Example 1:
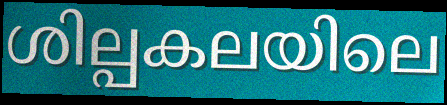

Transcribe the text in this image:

ശില്പകലയിലെ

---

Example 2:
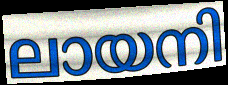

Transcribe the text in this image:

ലായനി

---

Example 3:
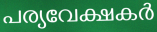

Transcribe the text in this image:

പര്യവേക്ഷകർ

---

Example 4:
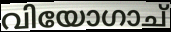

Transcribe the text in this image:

വിയോഗാച്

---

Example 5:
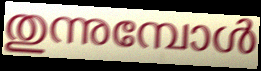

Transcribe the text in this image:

തുന്നുമ്പോൾ